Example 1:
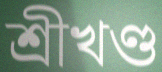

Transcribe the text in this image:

শ্রীখণ্ড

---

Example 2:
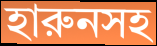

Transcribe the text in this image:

হারুনসহ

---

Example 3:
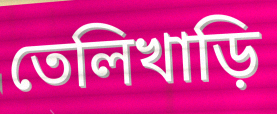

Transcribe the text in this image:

তেলিখাড়ি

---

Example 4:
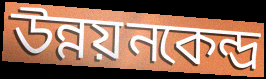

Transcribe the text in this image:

উন্নয়নকেন্দ্র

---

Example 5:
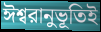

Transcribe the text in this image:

ঈশ্বরানুভূতিই